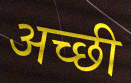
अच्छी